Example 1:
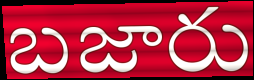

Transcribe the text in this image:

బజారు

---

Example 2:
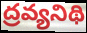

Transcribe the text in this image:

ద్రవ్యనిథి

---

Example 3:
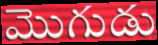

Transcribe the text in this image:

మొగుడు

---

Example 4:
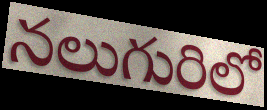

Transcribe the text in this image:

నలుగురిలో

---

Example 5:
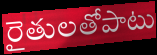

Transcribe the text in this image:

రైతులతోపాటు